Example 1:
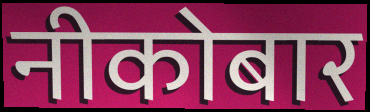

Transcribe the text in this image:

नीकोबार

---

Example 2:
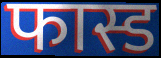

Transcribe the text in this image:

फास्ड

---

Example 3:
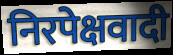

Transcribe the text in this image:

निरपेक्षवादी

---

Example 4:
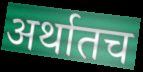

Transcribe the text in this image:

अर्थातच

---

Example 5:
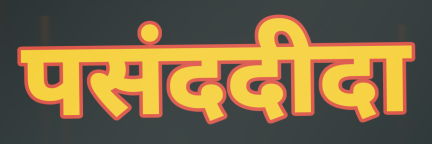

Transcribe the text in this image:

पसंददीदा